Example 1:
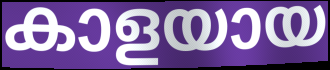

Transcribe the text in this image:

കാളയായ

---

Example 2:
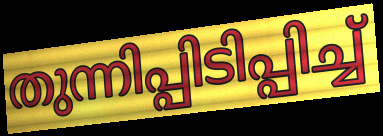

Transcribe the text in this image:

തുന്നിപ്പിടിപ്പിച്ച്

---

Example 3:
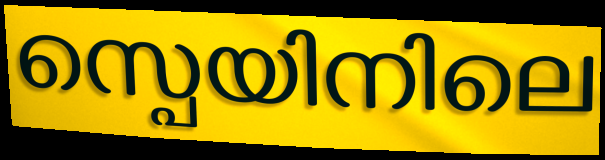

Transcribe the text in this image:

സ്പെയിനിലെ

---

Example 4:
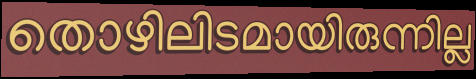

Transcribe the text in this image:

തൊഴിലിടമായിരുന്നില്ല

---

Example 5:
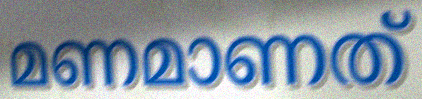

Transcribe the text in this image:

മണമാണത്